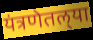
यंत्रणेतल्या